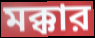
মক্কার